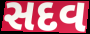
સદવ